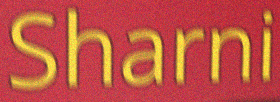
Sharni